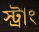
স্ট্রাং